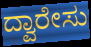
ದ್ವಾರೇಸು